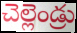
చెల్లెండ్రు